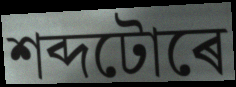
শব্দটোৰে